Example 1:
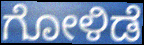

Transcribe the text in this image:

ಗೋಳಿಡೆ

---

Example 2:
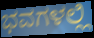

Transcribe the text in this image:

ಭವಗಳಲ್ಲಿ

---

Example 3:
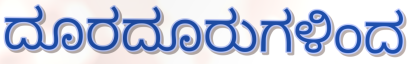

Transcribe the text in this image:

ದೂರದೂರುಗಳಿಂದ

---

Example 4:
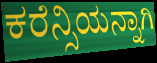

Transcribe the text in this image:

ಕರೆನ್ಸಿಯನ್ನಾಗಿ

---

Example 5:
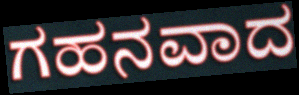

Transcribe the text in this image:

ಗಹನವಾದ